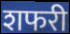
शफरी